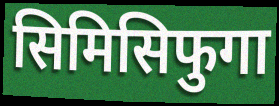
सिमिसिफुगा